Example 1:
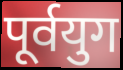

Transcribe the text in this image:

पूर्वयुग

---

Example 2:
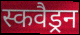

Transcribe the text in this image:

स्कवैड्रन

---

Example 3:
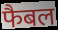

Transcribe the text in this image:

फैबल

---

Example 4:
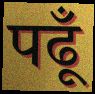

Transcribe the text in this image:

पढूँ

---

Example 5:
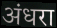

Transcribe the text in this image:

अंधरा